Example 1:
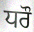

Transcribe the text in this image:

ਧਰੌ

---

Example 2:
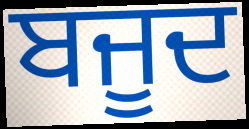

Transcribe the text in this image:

ਬਜੂਦ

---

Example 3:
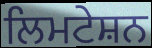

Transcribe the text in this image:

ਲਿਮਟੇਸ਼ਨ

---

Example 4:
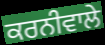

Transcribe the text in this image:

ਕਰਨੀਵਾਲੇ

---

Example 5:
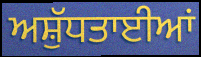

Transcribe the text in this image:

ਅਸ਼ੁੱਧਤਾਈਆਂ